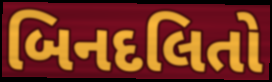
બિનદલિતો